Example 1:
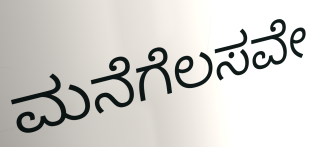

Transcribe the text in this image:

ಮನೆಗೆಲಸವೇ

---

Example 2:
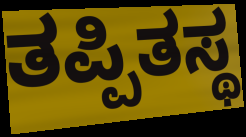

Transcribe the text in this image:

ತಪ್ಪಿತಸ್ಥ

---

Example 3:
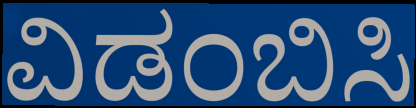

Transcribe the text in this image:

ವಿಡಂಬಿಸಿ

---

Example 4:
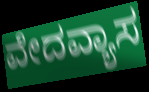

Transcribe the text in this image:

ವೇದವ್ಯಾಸ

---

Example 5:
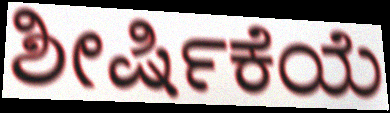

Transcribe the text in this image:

ಶೀರ್ಷಿಕೆಯೆ